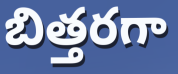
బిత్తరగా